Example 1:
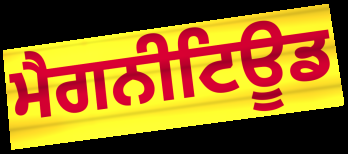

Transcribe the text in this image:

ਮੈਗਨੀਟਿਊਡ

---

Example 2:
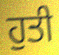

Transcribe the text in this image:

ਹੁਤੀ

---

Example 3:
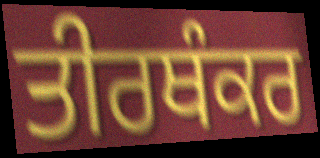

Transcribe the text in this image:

ਤੀਰਥੰਕਰ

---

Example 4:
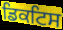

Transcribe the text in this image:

ਡਿਕਟਿਸ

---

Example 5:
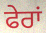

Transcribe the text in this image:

ਫੇਰਾਂ